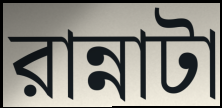
রান্নাটা